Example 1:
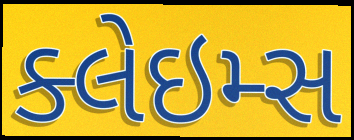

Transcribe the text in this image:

ક્લેઇમ્સ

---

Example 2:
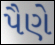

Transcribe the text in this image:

પૈણે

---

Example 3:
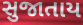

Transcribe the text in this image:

સુજાતાય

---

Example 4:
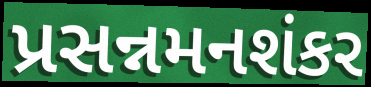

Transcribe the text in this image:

પ્રસન્નમનશંકર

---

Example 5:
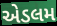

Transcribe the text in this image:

એડલમ